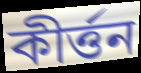
কীৰ্ত্তন